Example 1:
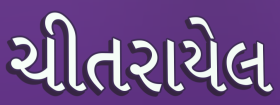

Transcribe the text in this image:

ચીતરાયેલ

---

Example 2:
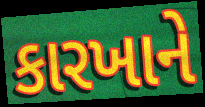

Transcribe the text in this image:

કારખાને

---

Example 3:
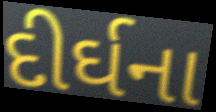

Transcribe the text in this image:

દીર્ઘના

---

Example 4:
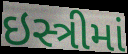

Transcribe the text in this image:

ઇસ્ત્રીમાં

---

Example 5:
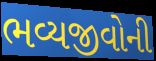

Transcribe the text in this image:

ભવ્યજીવોની